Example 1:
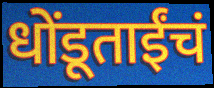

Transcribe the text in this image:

धोंडूताईंचं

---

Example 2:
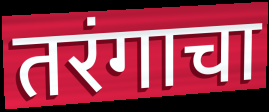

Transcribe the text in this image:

तरंगाचा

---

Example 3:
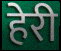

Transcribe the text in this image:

हेरी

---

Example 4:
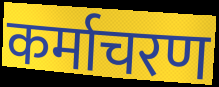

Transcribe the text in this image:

कर्माचरण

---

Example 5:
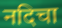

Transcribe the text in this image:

नदिचा